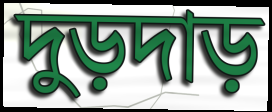
দুড়দাড়